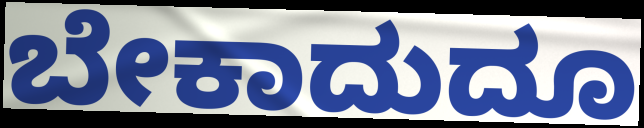
ಬೇಕಾದುದೂ